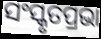
ସଂସ୍କୃତପ୍ରଭା